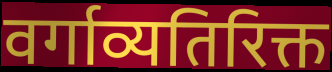
वर्गाव्यतिरिक्त